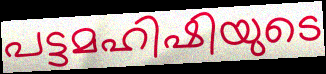
പട്ടമഹിഷിയുടെ